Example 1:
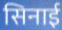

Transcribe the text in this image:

सिनाई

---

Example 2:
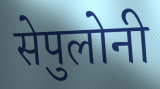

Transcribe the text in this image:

सेपुलोनी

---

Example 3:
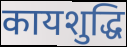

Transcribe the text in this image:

कायशुद्धि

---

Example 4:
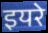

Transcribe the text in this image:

इयरे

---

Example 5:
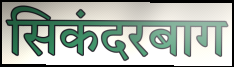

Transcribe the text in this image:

सिकंदरबाग